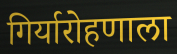
गिर्यारोहणाला